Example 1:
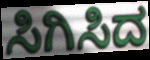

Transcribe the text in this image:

ಸಿಗಿಸಿದ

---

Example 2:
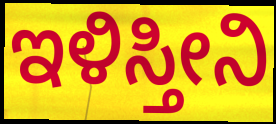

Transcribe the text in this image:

ಇಳಿಸ್ತೀನಿ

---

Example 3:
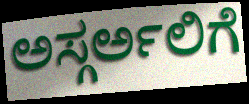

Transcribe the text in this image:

ಅಸ್ಗರ್ಅಲಿಗೆ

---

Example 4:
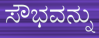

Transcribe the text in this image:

ಸೌಭವನ್ನು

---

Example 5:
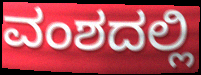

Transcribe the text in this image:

ವಂಶದಲ್ಲಿ